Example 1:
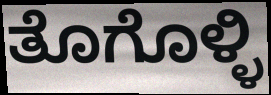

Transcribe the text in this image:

ತೊಗೊಳ್ಳಿ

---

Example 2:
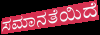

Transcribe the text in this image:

ಸಮಾನತೆಯಿದೆ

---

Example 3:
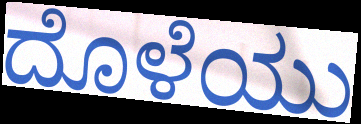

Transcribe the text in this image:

ದೊಳೆಯು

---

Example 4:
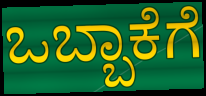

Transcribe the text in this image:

ಒಬ್ಬಾಕೆಗೆ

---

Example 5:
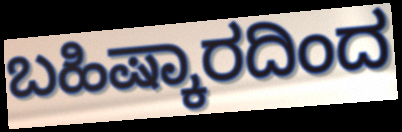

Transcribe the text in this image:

ಬಹಿಷ್ಕಾರದಿಂದ